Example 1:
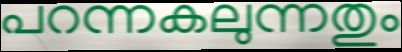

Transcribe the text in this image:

പറന്നകലുന്നതും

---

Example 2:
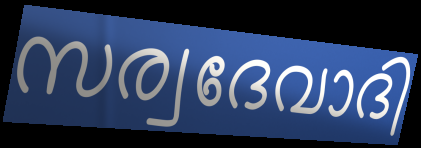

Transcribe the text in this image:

സര്വദേവാദി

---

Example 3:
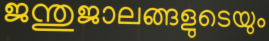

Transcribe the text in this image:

ജന്തുജാലങ്ങളുടെയും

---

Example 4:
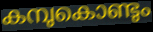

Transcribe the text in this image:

കമ്പുകൊണ്ടും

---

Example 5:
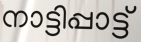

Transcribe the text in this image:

നാട്ടിപ്പാട്ട്